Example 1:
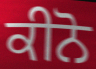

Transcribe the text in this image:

ਕੀਨੋ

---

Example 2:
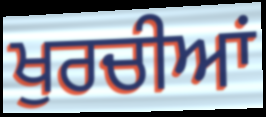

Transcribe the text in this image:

ਖੁਰਚੀਆਂ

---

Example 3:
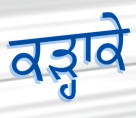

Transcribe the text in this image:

ਕੜ੍ਹਾਕੇ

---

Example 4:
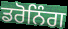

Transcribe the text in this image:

ਡਰੋਨਿੰਗ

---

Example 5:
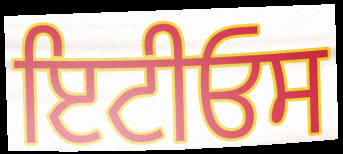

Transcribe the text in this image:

ਇਟੀਓਸ